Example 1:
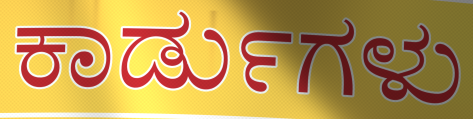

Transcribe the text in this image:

ಕಾರ್ಡುಗಳು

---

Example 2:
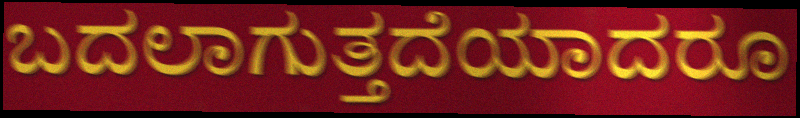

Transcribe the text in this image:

ಬದಲಾಗುತ್ತದೆಯಾದರೂ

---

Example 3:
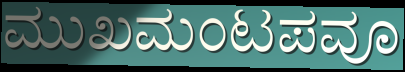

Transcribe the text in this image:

ಮುಖಮಂಟಪವೂ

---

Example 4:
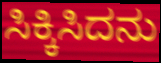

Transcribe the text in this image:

ಸಿಕ್ಕಿಸಿದನು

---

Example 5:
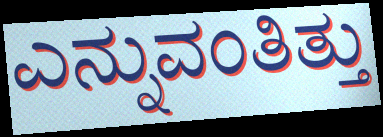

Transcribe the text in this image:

ಎನ್ನುವಂತಿತ್ತು